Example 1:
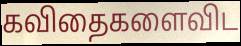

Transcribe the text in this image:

கவிதைகளைவிட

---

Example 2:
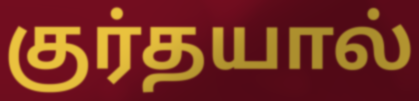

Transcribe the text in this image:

குர்தயால்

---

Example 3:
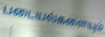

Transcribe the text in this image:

படையல்களையும்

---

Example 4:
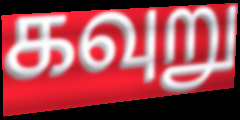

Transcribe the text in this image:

கவுறு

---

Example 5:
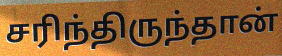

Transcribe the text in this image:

சரிந்திருந்தான்